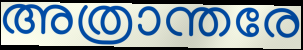
അത്രാന്തരേ